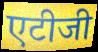
एटीजी